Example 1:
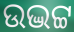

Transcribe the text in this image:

ଉଦ୍ଭଟ୍ଟ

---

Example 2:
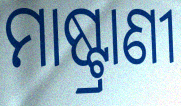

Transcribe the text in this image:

ମାଷ୍ଟ୍ରାଣୀ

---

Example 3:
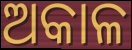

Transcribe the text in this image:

ଅକାଳ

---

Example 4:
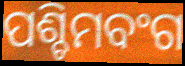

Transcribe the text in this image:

ପଶ୍ଚିମବଂଗ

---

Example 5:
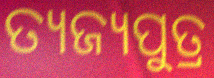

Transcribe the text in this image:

ତ୍ୟଜ୍ୟପୁତ୍ର